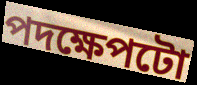
পদক্ষেপটো